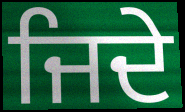
ਜਿਦੇ